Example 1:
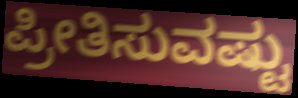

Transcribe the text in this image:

ಪ್ರೀತಿಸುವಷ್ಟು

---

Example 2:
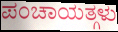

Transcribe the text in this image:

ಪಂಚಾಯತ್ಗಳು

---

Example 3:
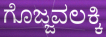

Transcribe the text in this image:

ಗೊಜ್ಜವಲಕ್ಕಿ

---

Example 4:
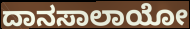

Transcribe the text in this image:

ದಾನಸಾಲಾಯೋ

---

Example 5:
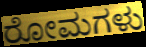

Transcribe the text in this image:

ರೋಮಗಳು